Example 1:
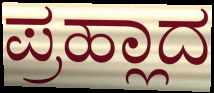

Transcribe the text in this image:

ಪ್ರಹ್ಲಾದ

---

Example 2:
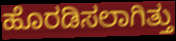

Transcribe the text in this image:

ಹೊರಡಿಸಲಾಗಿತ್ತು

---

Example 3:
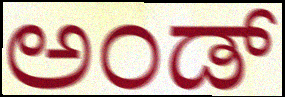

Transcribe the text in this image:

ಅಂಡ್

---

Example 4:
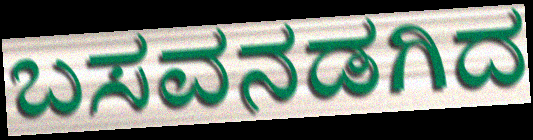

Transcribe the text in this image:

ಬಸವನಡಗಿದ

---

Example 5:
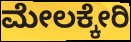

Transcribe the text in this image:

ಮೇಲಕ್ಕೇರಿ